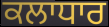
ਕਲਾਧਾਰ